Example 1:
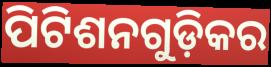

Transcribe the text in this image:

ପିଟିଶନଗୁଡ଼ିକର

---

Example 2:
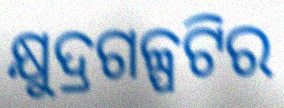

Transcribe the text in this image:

କ୍ଷୁଦ୍ରଗଳ୍ପଟିର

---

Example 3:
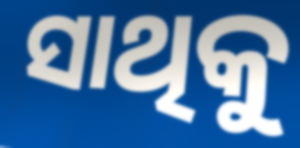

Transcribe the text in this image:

ସାଥିକୁ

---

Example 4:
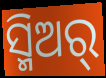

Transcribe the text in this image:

ସ୍ମିଅର୍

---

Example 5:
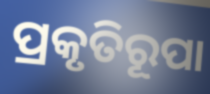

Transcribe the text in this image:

ପ୍ରକୃତିରୂପା